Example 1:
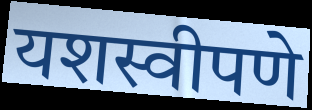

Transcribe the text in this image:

यशस्वीपणे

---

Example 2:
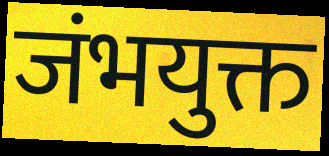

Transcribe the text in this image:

जंभयुक्त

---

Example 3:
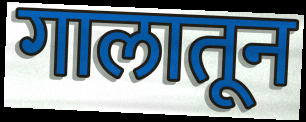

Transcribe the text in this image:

गालातून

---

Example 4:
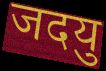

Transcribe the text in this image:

जदयु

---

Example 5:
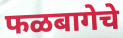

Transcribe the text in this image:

फळबागेचे